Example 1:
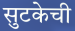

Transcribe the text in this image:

सुटकेची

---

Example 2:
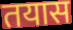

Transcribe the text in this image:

तयास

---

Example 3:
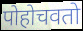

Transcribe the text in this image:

पोहोचवतो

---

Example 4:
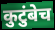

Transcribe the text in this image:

कुटुंबेच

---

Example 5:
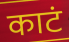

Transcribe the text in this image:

काटं